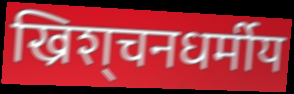
ख्रिश्चनधर्मीय